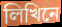
লিখিনে